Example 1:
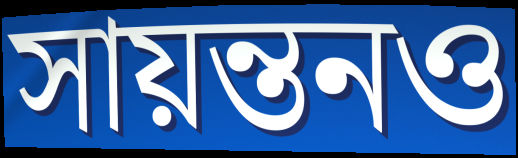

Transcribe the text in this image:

সায়ন্তনও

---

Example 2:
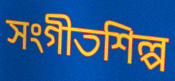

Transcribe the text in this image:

সংগীতশিল্প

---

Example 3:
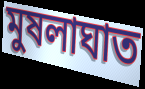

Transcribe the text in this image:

মুষলাঘাত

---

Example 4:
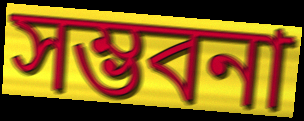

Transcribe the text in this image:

সম্ভবনা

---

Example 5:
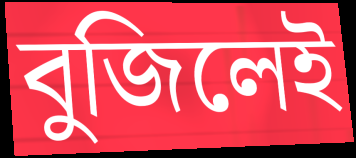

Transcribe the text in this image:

বুজিলেই